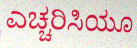
ಎಚ್ಚರಿಸಿಯೂ